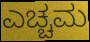
ಎಚ್ಚಮ